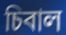
চিবাল